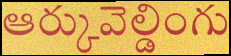
ఆర్కువెల్డింగు